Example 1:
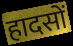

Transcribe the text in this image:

हादसों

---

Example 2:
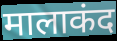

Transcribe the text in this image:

मालाकंद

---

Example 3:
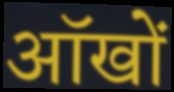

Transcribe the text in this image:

ऑखों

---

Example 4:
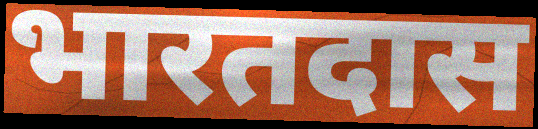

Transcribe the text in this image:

भारतदास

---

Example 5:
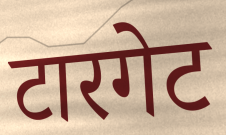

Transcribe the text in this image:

टारगेट